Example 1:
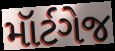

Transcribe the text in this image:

મૉર્ટગેજ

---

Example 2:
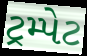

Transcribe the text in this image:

ટ્રમ્પેટ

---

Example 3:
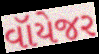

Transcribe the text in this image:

વૉયેજર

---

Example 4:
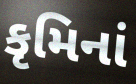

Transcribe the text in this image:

કૃમિનાં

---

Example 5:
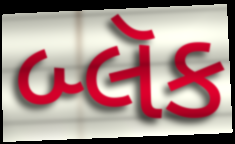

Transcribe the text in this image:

બ્લૅક